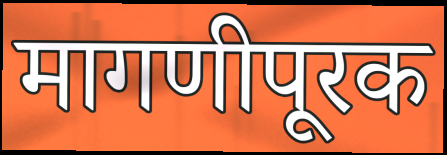
मागणीपूरक